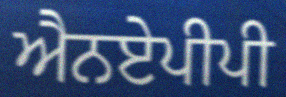
ਐਨਏਪੀਪੀ